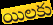
యిలకు